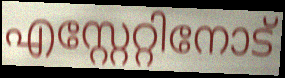
എസ്റ്റേറ്റിനോട്